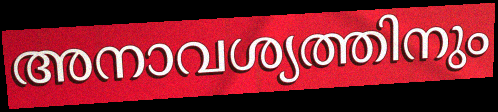
അനാവശ്യത്തിനും